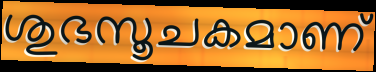
ശുഭസൂചകമാണ്